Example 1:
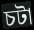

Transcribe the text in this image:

চটা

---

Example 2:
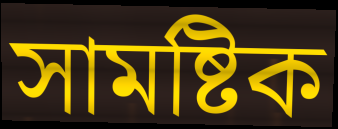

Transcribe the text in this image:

সামষ্টিক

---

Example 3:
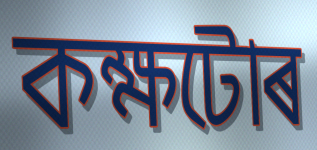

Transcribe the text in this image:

কক্ষটোৰ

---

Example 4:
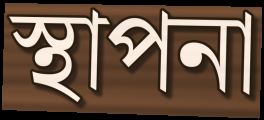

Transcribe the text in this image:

স্থাপনা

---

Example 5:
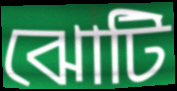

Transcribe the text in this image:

ঝোটি